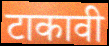
टाकावी